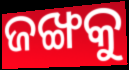
ଜଙ୍ଖକୁ